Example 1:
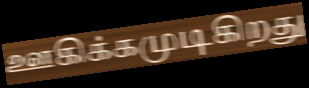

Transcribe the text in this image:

ஊகிக்கமுடிகிறது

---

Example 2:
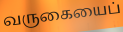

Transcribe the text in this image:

வருகையைப்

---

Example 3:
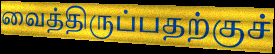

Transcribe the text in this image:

வைத்திருப்பதற்குச்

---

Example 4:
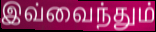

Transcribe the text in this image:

இவ்வைந்தும்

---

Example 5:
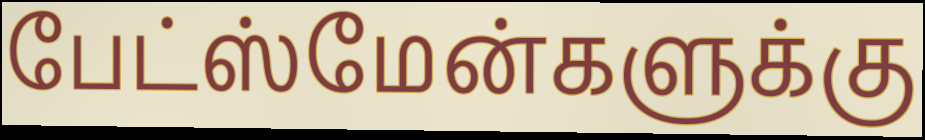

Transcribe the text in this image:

பேட்ஸ்மேன்களுக்கு